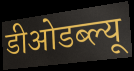
डीओडब्ल्यू